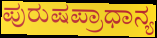
ಪುರುಷಪ್ರಾಧಾನ್ಯ